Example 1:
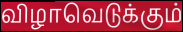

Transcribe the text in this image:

விழாவெடுக்கும்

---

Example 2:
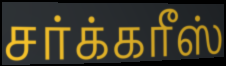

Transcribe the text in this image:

சர்க்கரீஸ்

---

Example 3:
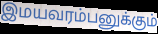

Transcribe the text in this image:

இமயவரம்பனுக்கும்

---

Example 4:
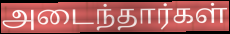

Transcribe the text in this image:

அடைந்தார்கள்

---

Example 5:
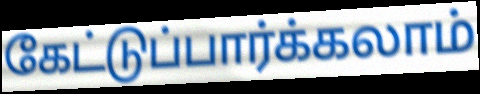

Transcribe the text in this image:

கேட்டுப்பார்க்கலாம்